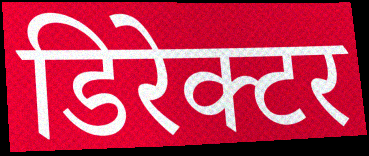
डिरेक्टर